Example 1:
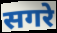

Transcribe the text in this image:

सगरे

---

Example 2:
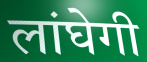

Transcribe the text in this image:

लांघेगी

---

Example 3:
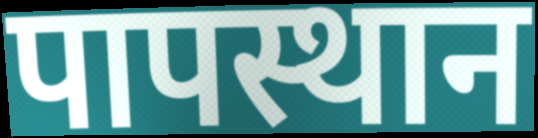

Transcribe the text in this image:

पापस्थान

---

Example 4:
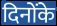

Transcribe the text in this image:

दिनोंके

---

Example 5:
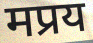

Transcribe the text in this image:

मप्रय